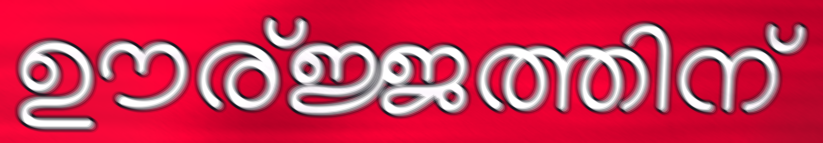
ഊര്ജ്ജത്തിന്